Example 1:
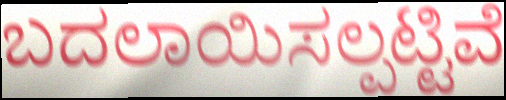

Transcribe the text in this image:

ಬದಲಾಯಿಸಲ್ಪಟ್ಟಿವೆ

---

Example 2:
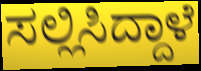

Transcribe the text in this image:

ಸಲ್ಲಿಸಿದ್ದಾಳೆ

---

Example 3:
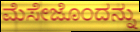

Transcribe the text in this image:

ಮೆಸೇಜೊಂದನ್ನು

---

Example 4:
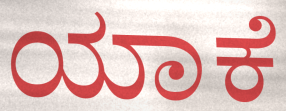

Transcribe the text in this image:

ಯಾಕೆ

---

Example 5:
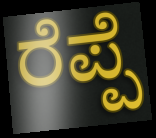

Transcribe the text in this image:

ರೆಪ್ಪೆ